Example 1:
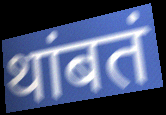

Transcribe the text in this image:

थांबतं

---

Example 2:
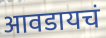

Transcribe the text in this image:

आवडायचं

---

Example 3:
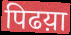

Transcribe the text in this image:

पिढय़ा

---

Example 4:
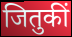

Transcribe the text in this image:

जितुकीं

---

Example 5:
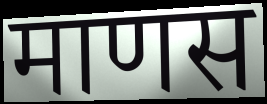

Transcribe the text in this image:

माणस